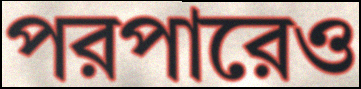
পরপারেও